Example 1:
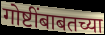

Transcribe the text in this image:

गोष्टींबाबतच्या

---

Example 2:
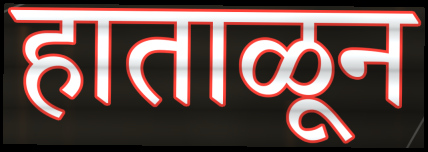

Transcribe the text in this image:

हाताळून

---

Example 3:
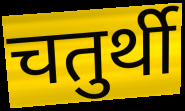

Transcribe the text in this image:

चतुर्थी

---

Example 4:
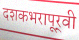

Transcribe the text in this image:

दशकभरापूर्वी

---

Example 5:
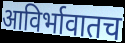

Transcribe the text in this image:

आविर्भावातच